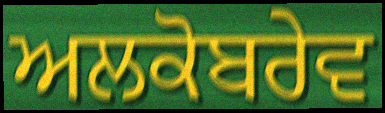
ਅਲਕੋਬਰੇਵ